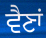
ਵੈਣਾਂ